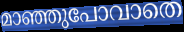
മാഞ്ഞുപോവാതെ